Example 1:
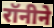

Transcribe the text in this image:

रॉनीने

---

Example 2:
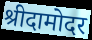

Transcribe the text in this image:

श्रीदामोदर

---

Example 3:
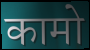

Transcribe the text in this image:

कामो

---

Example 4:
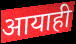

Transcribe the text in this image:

आयाही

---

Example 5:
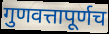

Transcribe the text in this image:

गुणवत्तापूर्णच